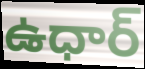
ఉధార్